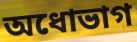
অধোভাগ